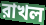
রাখল